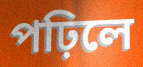
পঢ়িলে